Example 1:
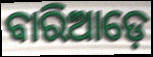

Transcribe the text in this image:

ବାରିଆଡ଼େ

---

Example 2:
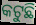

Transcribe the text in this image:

କଟୁଛି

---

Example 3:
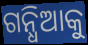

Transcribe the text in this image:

ଗନ୍ଧିଆକୁ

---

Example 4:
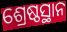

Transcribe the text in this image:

ଶ୍ରେଷ୍ଠସ୍ଥାନ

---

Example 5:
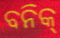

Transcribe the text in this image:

ବନିକ୍